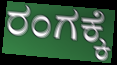
ರಂಗಕ್ಕೆ